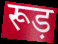
रूड़